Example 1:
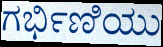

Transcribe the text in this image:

ಗರ್ಭಿಣಿಯು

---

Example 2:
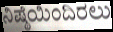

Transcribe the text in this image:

ನಿಷ್ಠೆಯಿಂದಿರಲು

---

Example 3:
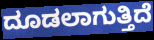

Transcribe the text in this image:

ದೂಡಲಾಗುತ್ತಿದೆ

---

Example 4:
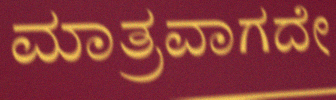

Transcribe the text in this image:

ಮಾತ್ರವಾಗದೇ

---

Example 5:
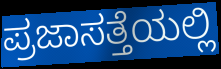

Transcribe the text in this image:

ಪ್ರಜಾಸತ್ತೆಯಲ್ಲಿ